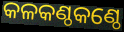
କଳକଣ୍ଠକଣ୍ଠେ